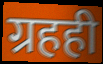
ग्रहही